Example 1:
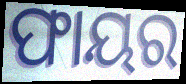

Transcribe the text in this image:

ଫାୟର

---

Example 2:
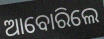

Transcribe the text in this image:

ଆବୋରିଲେ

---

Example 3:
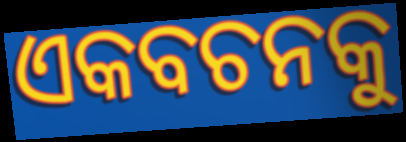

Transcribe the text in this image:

ଏକବଚନକୁ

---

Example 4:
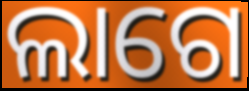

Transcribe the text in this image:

ଲାଗେ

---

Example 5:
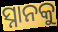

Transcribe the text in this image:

ସ୍ନାନକୁ